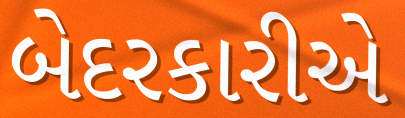
બેદરકારીએ